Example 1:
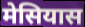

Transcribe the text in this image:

मेसियास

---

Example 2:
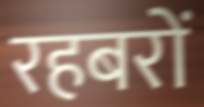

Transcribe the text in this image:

रहबरों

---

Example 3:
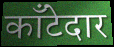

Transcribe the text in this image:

काँटेदार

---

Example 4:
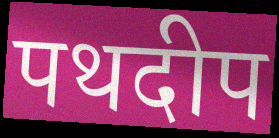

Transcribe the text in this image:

पथदीप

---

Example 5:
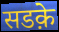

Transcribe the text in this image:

सडक़े